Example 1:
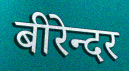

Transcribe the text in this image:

बीरेन्दर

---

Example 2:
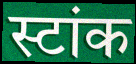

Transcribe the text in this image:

स्टांक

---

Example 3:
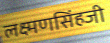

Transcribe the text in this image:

लक्ष्मणसिंहजी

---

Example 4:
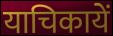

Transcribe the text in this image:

याचिकायें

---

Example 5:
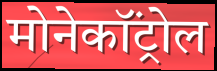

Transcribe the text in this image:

मोनेकॉंट्रोल